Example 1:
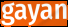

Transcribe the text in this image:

gayan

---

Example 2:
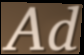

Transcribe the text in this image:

Ad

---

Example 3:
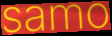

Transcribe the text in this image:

samo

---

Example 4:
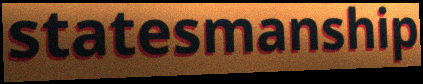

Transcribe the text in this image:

statesmanship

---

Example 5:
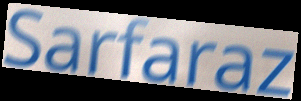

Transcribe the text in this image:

Sarfaraz